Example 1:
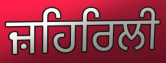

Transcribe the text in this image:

ਜ਼ਹਿਰਿਲੀ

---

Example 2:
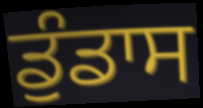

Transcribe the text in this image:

ਡੁੰਡਾਸ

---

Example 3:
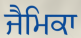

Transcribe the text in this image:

ਜੈਮਿਕਾ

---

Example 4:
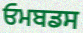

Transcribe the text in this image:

ਓਮਬਡਸ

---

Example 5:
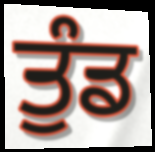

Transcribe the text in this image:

ਤੁੰਡ